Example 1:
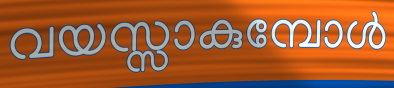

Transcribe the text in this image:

വയസ്സാകുമ്പോൾ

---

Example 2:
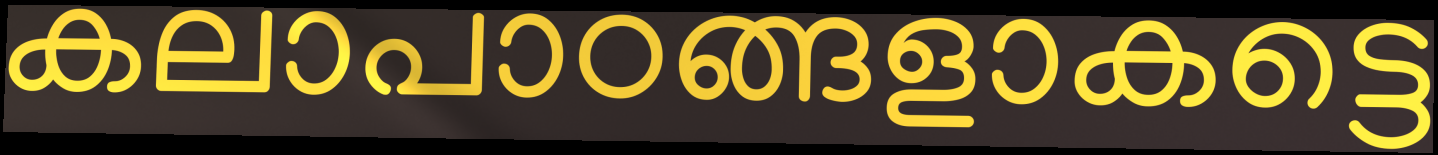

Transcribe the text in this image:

കലാപാഠങ്ങളാകട്ടെ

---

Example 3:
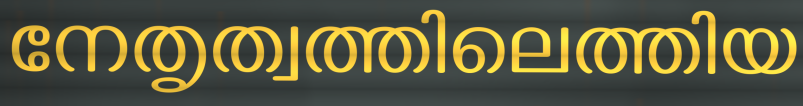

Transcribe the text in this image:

നേതൃത്വത്തിലെത്തിയ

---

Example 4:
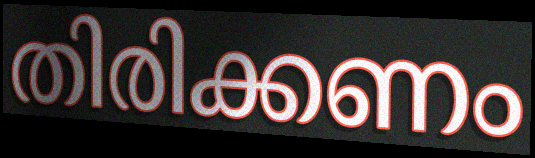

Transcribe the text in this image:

തിരിക്കണം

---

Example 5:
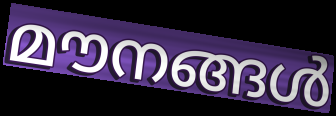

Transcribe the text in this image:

മൗനങ്ങൾ